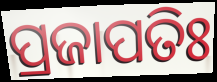
ପ୍ରଜାପତିଃ